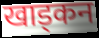
खाड्कन